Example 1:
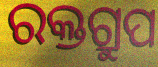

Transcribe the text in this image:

ରକ୍ତଗ୍ରୁପ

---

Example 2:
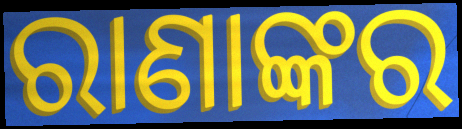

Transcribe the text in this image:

ରାଣାଙ୍କର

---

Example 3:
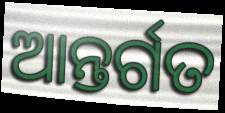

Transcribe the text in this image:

ଆନ୍ତର୍ଗତ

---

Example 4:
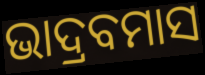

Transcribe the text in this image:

ଭାଦ୍ରବମାସ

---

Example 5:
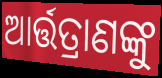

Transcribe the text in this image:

ଆର୍ତ୍ତତ୍ରାଣଙ୍କୁ